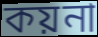
কয়না